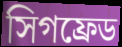
সিগফ্রেড